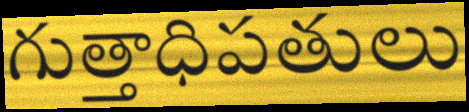
గుత్తాధిపతులు